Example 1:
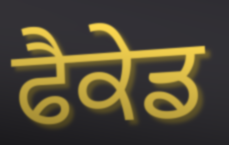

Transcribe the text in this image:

ਫੈਕੇਡ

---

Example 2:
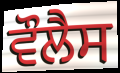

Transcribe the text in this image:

ਵੌਲੈਸ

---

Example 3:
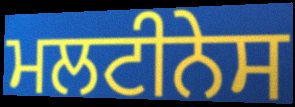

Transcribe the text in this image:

ਮਲਟੀਨੇਸ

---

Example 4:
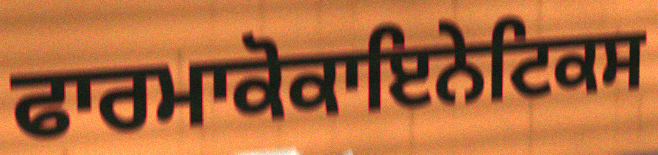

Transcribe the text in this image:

ਫਾਰਮਾਕੋਕਾਇਨੇਟਿਕਸ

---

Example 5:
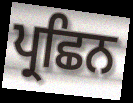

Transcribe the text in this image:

ਪ੍ਰਛਿਨ